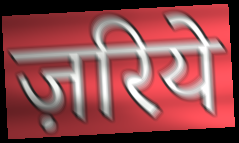
ज़रिये